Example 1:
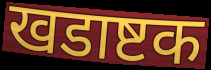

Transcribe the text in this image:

खडाष्टक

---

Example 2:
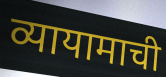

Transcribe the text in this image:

व्यायामाची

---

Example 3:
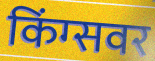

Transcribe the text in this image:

किंग्सवर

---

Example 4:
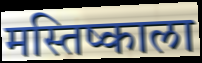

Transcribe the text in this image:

मस्तिष्काला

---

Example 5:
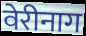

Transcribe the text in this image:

वेरीनाग